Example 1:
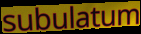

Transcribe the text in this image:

subulatum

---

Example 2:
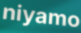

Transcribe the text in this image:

niyamo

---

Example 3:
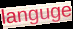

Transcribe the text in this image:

languge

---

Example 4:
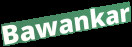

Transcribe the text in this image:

Bawankar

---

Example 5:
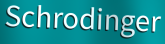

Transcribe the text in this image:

Schrodinger